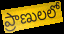
ప్రాణులలో